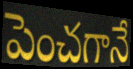
పెంచగానే